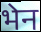
भेन